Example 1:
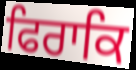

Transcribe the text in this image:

ਫਿਰਾਕਿ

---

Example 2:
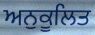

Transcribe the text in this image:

ਅਨੁਕੂਲਿਤ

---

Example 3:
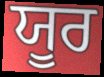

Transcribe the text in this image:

ਯੂਰ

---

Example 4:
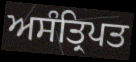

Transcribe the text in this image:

ਅਸੰਤ੍ਰਿਪਤ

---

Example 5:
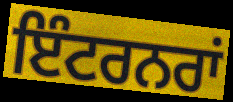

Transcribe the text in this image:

ਇੰਟਰਨਰਾਂ